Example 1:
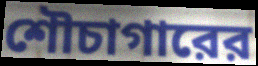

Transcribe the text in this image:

শৌচাগারের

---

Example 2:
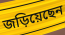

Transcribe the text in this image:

জড়িয়েছেন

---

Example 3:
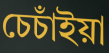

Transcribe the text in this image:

চেচাঁইয়া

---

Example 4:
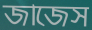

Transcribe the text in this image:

জাজেস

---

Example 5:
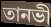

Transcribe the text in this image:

তানভী